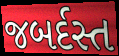
જબર્દસ્ત